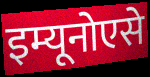
इम्यूनोएसे